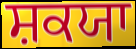
ਸ਼ਕਯਾ